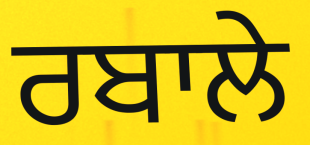
ਰਬਾਲੇ